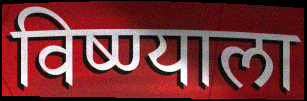
विष्ण्याला